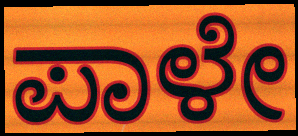
ಪಾಳೇ